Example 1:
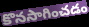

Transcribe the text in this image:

కొనసాగించడం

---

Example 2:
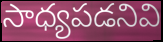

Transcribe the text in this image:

సాధ్యపడనివి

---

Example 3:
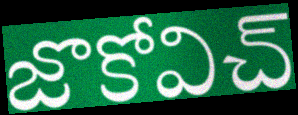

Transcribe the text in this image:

జొకోవిచ్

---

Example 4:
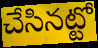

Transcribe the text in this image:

చేసినట్టో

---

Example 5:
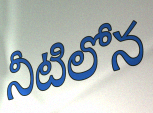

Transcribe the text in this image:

నీటిలోన